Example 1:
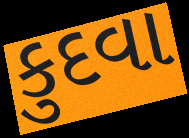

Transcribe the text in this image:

કુદવા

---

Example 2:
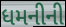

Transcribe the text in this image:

ધમનીની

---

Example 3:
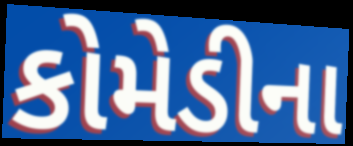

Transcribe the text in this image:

કોમેડીના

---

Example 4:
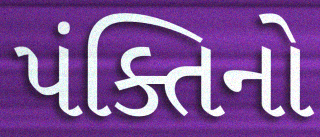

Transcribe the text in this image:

પંક્તિનો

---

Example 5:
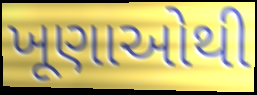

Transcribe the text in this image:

ખૂણાઓથી